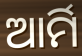
ଆର୍ମି